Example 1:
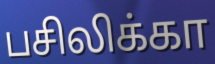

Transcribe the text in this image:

பசிலிக்கா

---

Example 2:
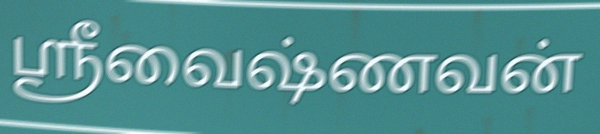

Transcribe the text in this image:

ஸ்ரீவைஷ்ணவன்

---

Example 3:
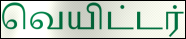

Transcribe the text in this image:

வெயிட்டர்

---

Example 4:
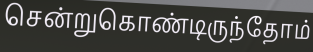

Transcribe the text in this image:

சென்றுகொண்டிருந்தோம்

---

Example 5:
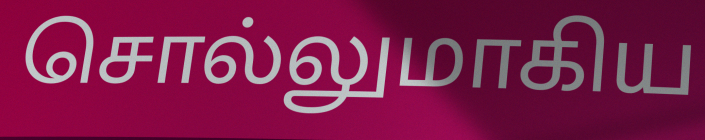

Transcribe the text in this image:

சொல்லுமாகிய